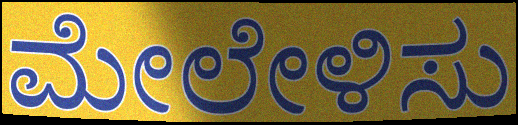
ಮೇಲೇಳಿಸು